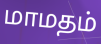
மாமதம்